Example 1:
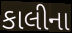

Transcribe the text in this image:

કાલીના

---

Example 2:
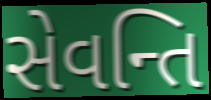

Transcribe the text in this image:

સેવન્તિ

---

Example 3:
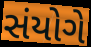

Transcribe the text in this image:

સંયોગે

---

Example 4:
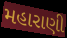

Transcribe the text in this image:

મહારાણી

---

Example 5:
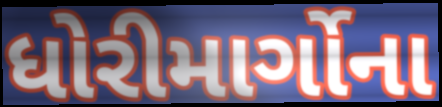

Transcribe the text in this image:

ધોરીમાર્ગોના